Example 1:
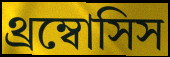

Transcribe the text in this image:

থ্রম্বোসিস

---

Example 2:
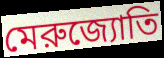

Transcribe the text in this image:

মেরুজ্যোতি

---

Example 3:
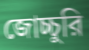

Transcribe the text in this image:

জোচ্চুরি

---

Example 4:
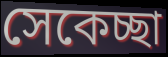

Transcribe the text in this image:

সেকেচ্ছা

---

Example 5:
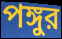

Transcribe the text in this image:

পঙ্গুর